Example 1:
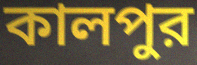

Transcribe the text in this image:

কালপুর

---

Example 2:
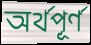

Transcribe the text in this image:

অর্থপূর্ণ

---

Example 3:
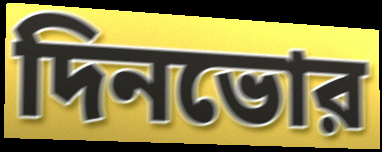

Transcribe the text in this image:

দিনভোর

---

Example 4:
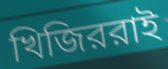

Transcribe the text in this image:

খিজিররাই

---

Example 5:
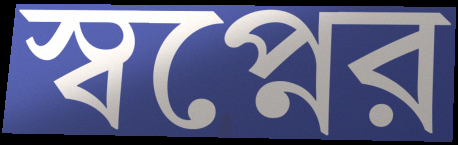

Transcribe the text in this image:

স্বপ্নের